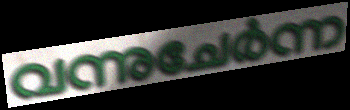
വന്നുചേർന്ന